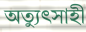
অত্যুৎসাহী